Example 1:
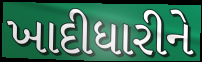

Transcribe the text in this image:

ખાદીધારીને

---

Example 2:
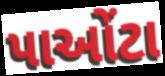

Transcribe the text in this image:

પાઓંટા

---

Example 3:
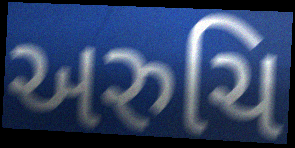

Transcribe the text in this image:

અરુચિ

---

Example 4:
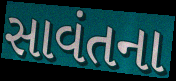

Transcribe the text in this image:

સાવંતના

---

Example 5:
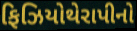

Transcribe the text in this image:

ફિઝિયોથેરાપીનો